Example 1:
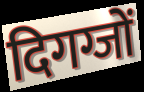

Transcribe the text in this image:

दिगग्जों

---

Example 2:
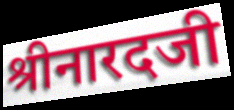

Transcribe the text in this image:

श्रीनारदजी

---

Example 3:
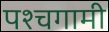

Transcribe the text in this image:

पश्चगामी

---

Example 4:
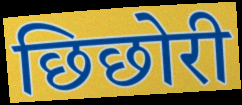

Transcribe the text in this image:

छिछोरी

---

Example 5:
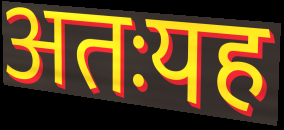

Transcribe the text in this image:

अतःयह